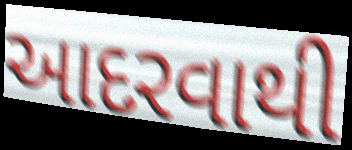
આદરવાથી